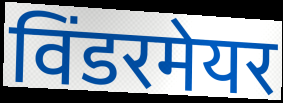
विंडरमेयर